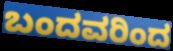
ಬಂದವರಿಂದ